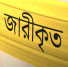
জারীকৃত